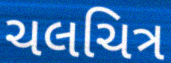
ચલચિત્ર